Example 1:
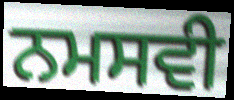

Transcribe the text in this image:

ਨਮਸਵੀ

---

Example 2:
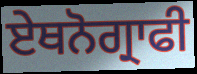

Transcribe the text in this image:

ਏਥਨੋਗ੍ਰਾਫੀ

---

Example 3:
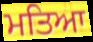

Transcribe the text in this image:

ਮਤਿਆ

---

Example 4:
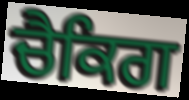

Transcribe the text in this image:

ਚੈਕਿਗ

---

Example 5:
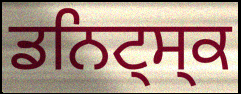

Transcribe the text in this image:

ਡਨਿਟ੍ਸ੍ਕ